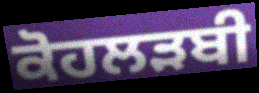
ਕੋਹਲੜਬੀ